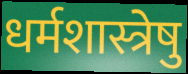
धर्मशास्त्रेषु